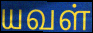
யவள்